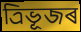
ত্ৰিভূজৰ